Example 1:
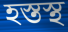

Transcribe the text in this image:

হস্তস্থ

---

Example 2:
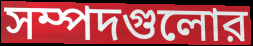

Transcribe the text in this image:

সম্পদগুলোর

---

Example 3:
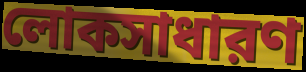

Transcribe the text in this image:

লোকসাধারণ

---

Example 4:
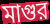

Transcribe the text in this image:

মাগুর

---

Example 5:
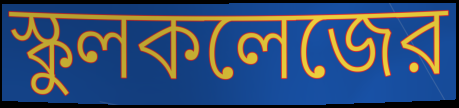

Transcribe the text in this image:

স্কুলকলেজের